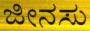
ಜೀನಸು